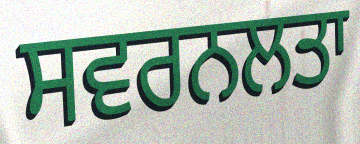
ਸਵਰਨਲਤਾ